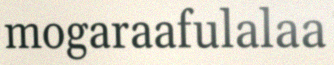
mogaraafulalaa